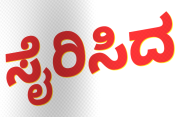
ಸೈರಿಸಿದ